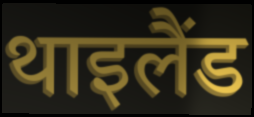
थाइलैंड